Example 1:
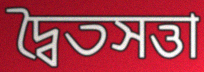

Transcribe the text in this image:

দ্বৈতসত্তা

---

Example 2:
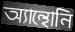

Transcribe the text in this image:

অ্যান্থোনি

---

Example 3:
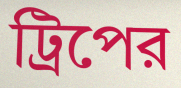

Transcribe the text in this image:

ট্রিপের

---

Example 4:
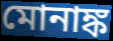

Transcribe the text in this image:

মোনাঙ্ক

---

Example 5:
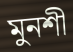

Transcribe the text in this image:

মুনশী